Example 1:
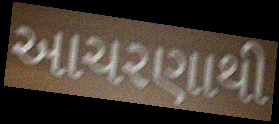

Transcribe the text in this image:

આચરણાથી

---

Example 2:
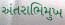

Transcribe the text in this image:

અંતરાભિમુખ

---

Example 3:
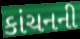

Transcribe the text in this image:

કાંચનની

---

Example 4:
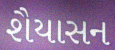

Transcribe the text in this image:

શૈયાસન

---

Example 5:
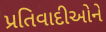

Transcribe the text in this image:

પ્રતિવાદીઓને